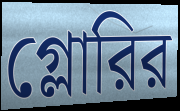
গ্লোরির